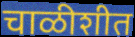
चाळीशीत